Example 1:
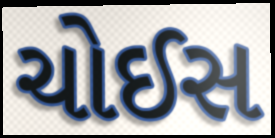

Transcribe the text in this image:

ચોઈસ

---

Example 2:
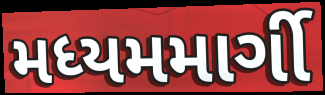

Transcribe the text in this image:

મધ્યમમાર્ગી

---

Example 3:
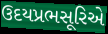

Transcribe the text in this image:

ઉદયપ્રભસૂરિએ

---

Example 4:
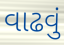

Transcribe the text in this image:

વાઢવું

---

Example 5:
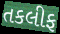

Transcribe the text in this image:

તકલીફ